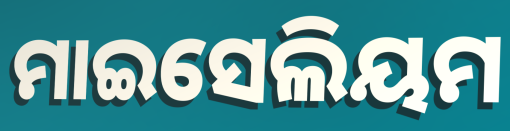
ମାଇସେଲିୟମ